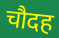
चौदह